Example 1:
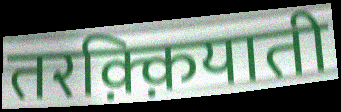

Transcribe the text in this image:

तरक़्क़ियाती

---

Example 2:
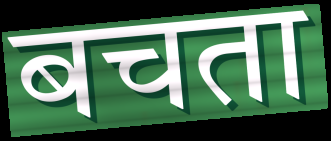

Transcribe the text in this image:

बचता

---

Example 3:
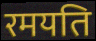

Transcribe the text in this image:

रमयति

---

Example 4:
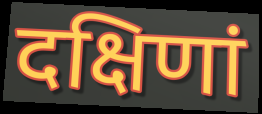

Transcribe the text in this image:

दक्षिणां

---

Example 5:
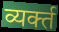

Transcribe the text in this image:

व्यर्क्त